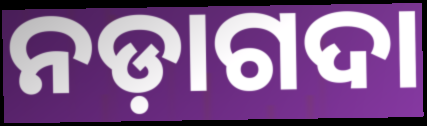
ନଡ଼ାଗଦା